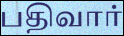
பதிவார்